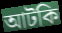
আটকি